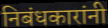
निबंधकारांनी